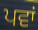
ਪਵਾਂ